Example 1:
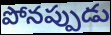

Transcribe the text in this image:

పోనప్పుడు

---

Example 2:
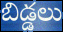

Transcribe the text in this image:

బిడ్డలు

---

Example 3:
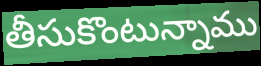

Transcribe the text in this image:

తీసుకొంటున్నాము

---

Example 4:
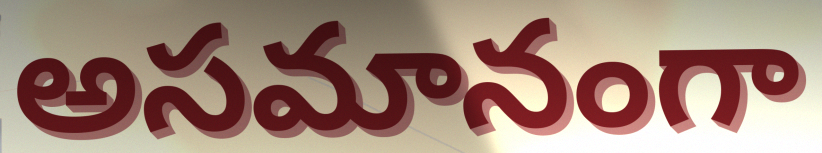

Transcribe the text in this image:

అసమానంగా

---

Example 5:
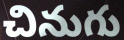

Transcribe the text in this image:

చినుగు